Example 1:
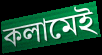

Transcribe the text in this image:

কলামেই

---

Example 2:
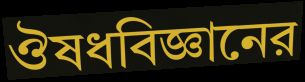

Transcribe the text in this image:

ঔষধবিজ্ঞানের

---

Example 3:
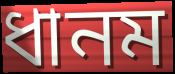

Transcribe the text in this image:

ধানম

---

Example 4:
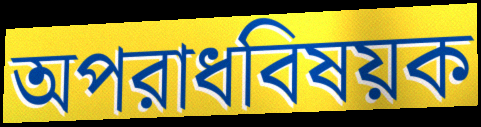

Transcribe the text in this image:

অপরাধবিষয়ক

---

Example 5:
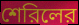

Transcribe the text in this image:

শেরিলের